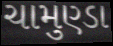
ચામુણ્ડા